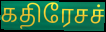
கதிரேசச்